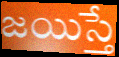
జయిస్తే